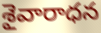
శైవారాధన